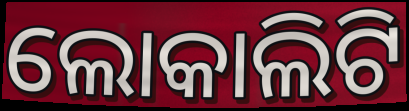
ଲୋକାଲିଟି